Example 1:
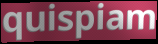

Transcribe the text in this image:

quispiam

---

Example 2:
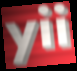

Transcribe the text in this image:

yii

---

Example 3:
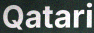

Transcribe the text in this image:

Qatari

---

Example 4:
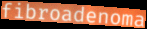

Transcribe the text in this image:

fibroadenoma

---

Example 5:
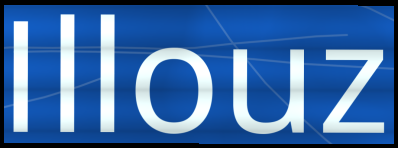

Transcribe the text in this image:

Illouz